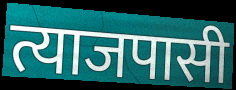
त्याजपासी